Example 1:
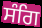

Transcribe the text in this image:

ਸੰਗਿ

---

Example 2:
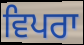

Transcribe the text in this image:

ਵਿਪਰਾ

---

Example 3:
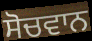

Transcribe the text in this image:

ਸੋਚਵਾਨ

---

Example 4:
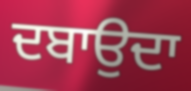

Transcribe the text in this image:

ਦਬਾਉਦਾ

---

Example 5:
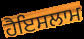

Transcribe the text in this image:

ਹੈਇਸਲਾਮ